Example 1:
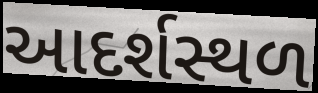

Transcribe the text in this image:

આદર્શસ્થળ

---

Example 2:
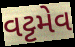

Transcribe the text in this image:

વટ્ટમેવ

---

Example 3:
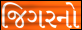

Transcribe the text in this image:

જિગરનો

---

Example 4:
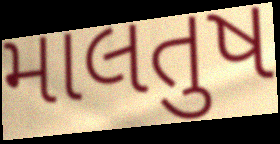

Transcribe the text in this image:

માલતુષ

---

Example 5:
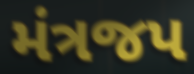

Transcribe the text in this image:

મંત્રજપ